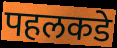
पहलकडे